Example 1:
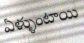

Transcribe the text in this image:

ఏళ్ళుంటాయి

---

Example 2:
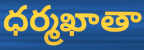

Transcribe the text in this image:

ధర్మఖాతా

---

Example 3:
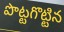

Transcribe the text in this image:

పొట్టగొట్టిన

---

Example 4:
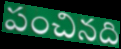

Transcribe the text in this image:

పంచినది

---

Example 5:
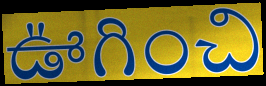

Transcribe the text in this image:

ఊగించి